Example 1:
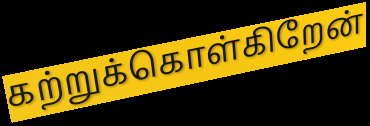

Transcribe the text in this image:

கற்றுக்கொள்கிறேன்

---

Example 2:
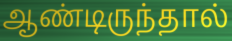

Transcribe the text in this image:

ஆண்டிருந்தால்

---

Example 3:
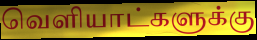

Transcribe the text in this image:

வெளியாட்களுக்கு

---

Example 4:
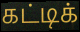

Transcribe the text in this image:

கட்டிக்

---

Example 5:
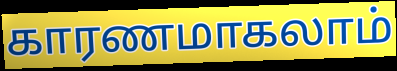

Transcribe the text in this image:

காரணமாகலாம்